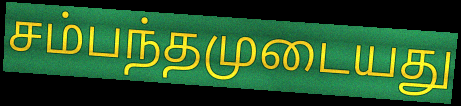
சம்பந்தமுடையது